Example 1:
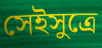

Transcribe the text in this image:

সেইসুত্রে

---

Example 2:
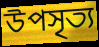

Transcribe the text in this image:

উপসৃত্য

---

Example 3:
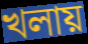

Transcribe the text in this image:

খলায়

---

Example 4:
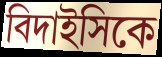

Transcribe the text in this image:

বিদাইসিকে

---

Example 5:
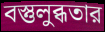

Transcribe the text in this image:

বস্তুলুব্ধতার